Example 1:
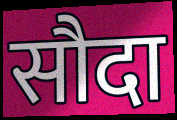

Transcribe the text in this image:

सौदा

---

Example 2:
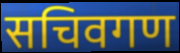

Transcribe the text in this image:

सचिवगण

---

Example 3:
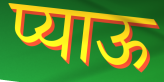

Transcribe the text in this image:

प्याऊ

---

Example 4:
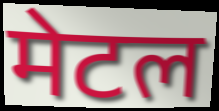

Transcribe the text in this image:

मेटल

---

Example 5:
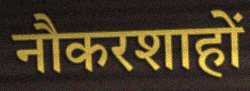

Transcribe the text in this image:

नौकरशाहों